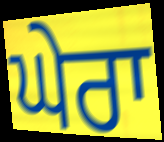
ਘੇਰਾ